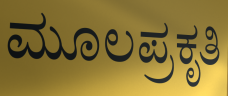
ಮೂಲಪ್ರಕೃತಿ